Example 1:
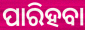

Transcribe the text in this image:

ପାରିହବା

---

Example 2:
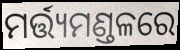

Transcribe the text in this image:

ମର୍ତ୍ତ୍ୟମଣ୍ଡଳରେ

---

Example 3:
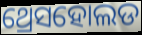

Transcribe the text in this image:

ଥ୍ରେସହୋଲଡ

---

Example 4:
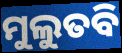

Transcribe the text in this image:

ମୁଲୁତବି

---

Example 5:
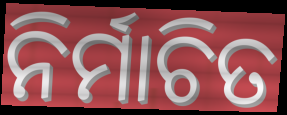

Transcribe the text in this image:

ନିର୍ମାଚିତ